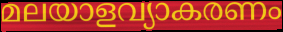
മലയാളവ്യാകരണം